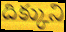
దిక్కుని